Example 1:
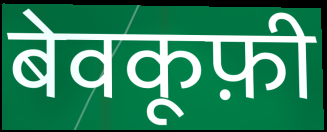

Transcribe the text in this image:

बेवकूफ़ी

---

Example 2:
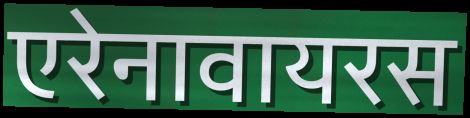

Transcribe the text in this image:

एरेनावायरस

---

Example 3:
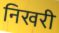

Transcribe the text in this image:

निखरी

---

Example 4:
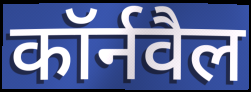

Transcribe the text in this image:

कॉर्नवैल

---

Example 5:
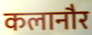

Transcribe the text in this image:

कलानौर